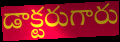
డాక్టరుగారు